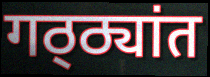
गठ्ठ्यांत